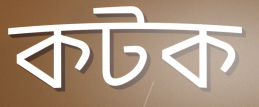
কটক